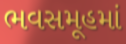
ભવસમૂહમાં